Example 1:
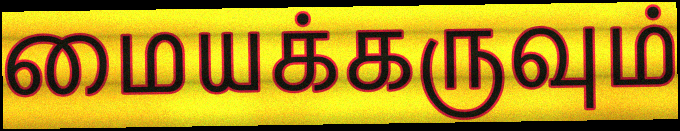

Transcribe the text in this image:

மையக்கருவும்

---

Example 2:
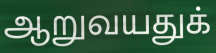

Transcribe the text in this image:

ஆறுவயதுக்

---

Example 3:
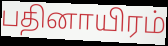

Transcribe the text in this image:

பதினாயிரம்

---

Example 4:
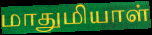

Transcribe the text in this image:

மாதுமியாள்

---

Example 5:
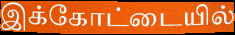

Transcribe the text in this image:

இக்கோட்டையில்